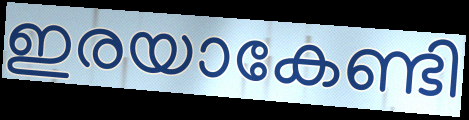
ഇരയാകേണ്ടി